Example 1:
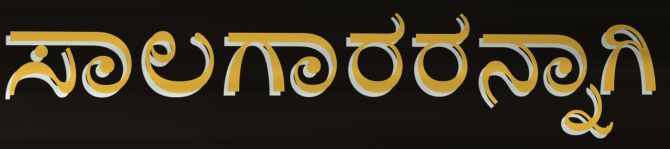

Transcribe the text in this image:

ಸಾಲಗಾರರನ್ನಾಗಿ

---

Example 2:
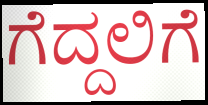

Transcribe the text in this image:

ಗೆದ್ದಲಿಗೆ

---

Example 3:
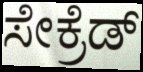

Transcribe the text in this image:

ಸೇಕ್ರೆಡ್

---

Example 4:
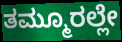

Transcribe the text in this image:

ತಮ್ಮೂರಲ್ಲೇ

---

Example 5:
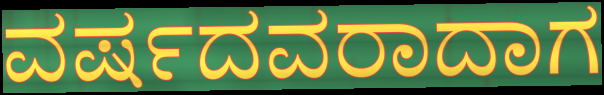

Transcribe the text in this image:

ವರ್ಷದವರಾದಾಗ